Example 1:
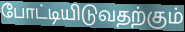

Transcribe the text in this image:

போட்டியிடுவதற்கும்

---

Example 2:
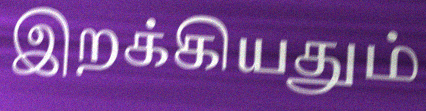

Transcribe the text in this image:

இறக்கியதும்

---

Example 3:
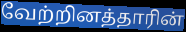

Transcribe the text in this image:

வேற்றினத்தாரின்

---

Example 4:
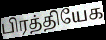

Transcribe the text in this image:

பிரத்தியேக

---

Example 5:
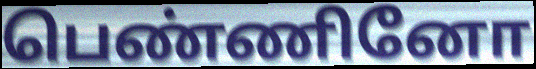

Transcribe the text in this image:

பெண்ணினோ